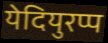
येदियुरप्प